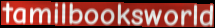
tamilbooksworld